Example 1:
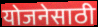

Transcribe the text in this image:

योजनेसाठी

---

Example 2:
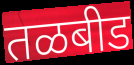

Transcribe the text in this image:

तळबीड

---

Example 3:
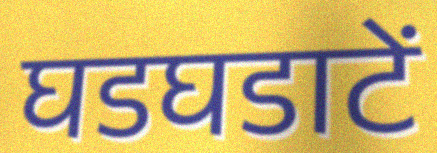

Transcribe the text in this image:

घडघडाटें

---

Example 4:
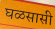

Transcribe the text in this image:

घळसासी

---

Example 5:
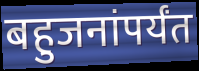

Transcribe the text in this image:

बहुजनांपर्यंत